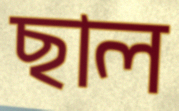
ছাল